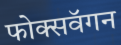
फोक्सवॅगन